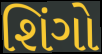
શિંગો